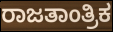
ರಾಜತಾಂತ್ರಿಕ